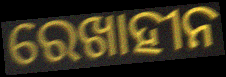
ରେଖାହୀନ